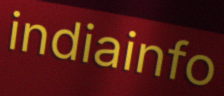
indiainfo